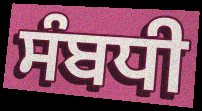
ਸੰਬਧੀ